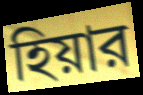
হিয়ার